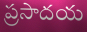
ప్రసాదయ